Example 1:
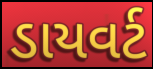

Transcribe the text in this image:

ડાયવર્ટ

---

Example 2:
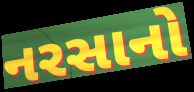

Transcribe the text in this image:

નરસાનો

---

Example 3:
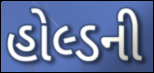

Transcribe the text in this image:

હોલ્ડની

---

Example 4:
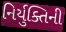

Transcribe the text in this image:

નિર્યુક્તિની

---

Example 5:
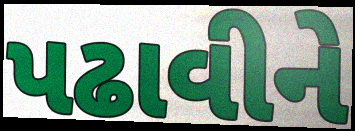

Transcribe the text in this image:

પઢાવીને